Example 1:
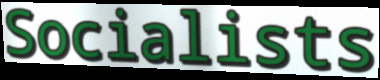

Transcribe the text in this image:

Socialists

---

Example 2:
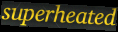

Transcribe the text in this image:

superheated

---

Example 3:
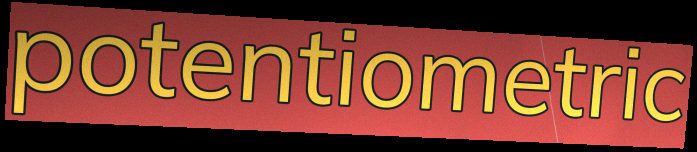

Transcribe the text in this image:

potentiometric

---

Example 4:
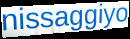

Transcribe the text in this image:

nissaggiyo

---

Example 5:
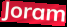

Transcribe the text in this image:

Joram